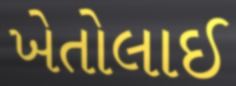
ખેતોલાઈ